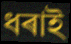
ধৰাই